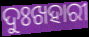
ଦୁଃଖହାରୀ